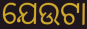
ଯେଉଟା